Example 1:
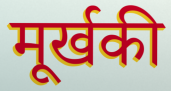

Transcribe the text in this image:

मूर्खकी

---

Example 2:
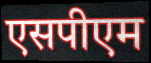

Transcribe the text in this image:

एसपीएम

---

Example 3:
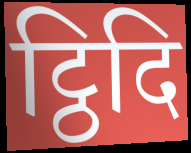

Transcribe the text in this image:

ट्ठिदि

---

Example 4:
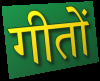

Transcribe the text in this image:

गीतों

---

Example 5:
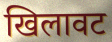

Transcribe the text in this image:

खिलावट